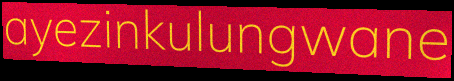
ayezinkulungwane